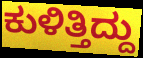
ಕುಳಿತ್ತಿದ್ದು